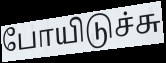
போயிடுச்சு